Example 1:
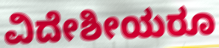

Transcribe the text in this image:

ವಿದೇಶೀಯರೂ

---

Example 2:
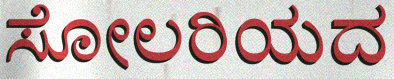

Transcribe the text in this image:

ಸೋಲರಿಯದ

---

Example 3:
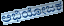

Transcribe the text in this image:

ಅಭಿಯೋಜಕ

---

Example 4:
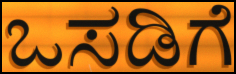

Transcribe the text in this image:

ಒಸಡಿಗೆ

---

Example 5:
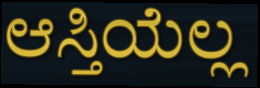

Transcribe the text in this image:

ಆಸ್ತಿಯೆಲ್ಲ